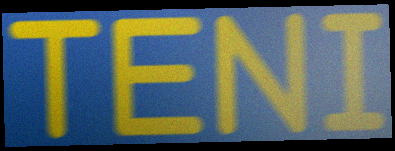
TENI